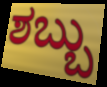
ಶಬ್ಬು